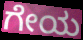
ಗೇಯ